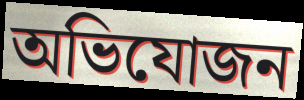
অভিযোজন